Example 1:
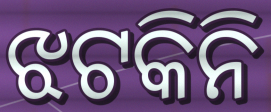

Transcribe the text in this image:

ଝଟକିନି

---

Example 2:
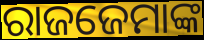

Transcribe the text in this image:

ରାଜଜେମାଙ୍କ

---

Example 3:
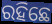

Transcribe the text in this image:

ରହିଛେ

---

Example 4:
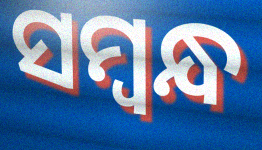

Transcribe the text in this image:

ସମ୍ୱନ୍ଧ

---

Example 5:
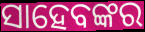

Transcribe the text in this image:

ସାହେବଙ୍କର